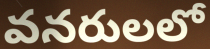
వనరులలో